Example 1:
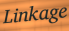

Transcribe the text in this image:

Linkage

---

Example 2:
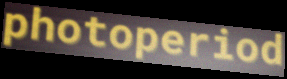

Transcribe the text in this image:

photoperiod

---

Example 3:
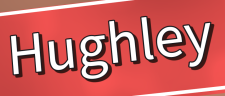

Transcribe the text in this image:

Hughley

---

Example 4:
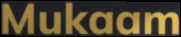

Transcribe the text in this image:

Mukaam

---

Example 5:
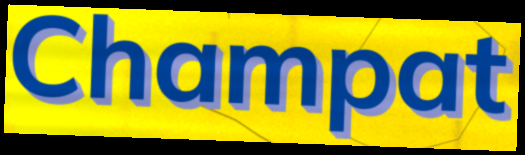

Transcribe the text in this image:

Champat